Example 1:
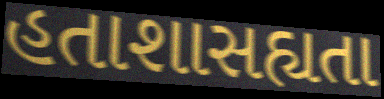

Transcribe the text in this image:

હતાશાસહ્યતા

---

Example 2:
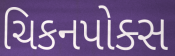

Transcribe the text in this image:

ચિકનપોક્સ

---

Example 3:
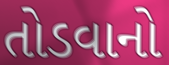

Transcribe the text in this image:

તોડવાનો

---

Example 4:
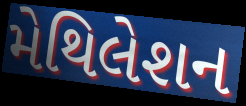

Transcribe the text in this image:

મેથિલેશન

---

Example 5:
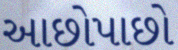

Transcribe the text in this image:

આછોપાછો